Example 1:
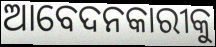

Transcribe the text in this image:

ଆବେଦନକାରୀକୁ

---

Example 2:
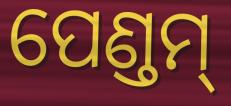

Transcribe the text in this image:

ପେଣ୍ଡମ୍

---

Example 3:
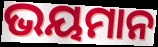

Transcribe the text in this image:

ଭୟମାନ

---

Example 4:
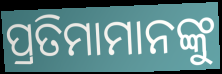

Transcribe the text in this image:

ପ୍ରତିମାମାନଙ୍କୁ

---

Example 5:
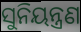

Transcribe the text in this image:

ସୁନିୟନ୍ତ୍ରଣ